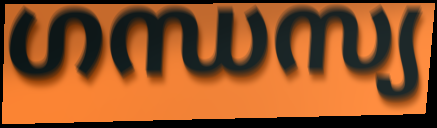
ഗന്ധസ്യ